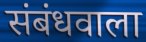
संबंधवाला